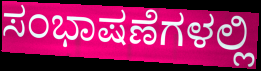
ಸಂಭಾಷಣೆಗಳಲ್ಲಿ